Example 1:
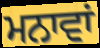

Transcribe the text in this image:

ਮਨਾਵਾਂ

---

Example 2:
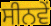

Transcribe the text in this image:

ਸੀਨਵੇਂ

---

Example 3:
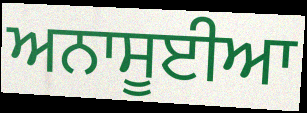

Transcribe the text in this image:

ਅਨਾਸੂਈਆ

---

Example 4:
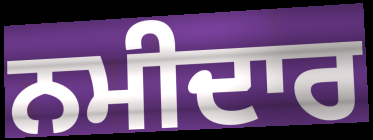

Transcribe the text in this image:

ਨਮੀਦਾਰ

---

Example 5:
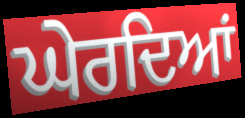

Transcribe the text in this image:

ਘੇਰਦਿਆਂ